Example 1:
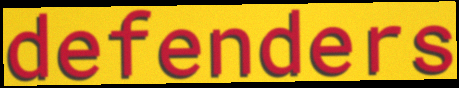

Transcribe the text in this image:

defenders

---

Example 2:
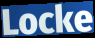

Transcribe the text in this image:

Locke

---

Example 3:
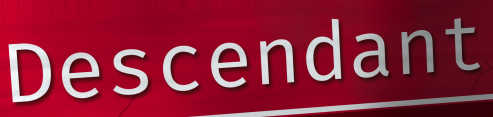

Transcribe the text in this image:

Descendant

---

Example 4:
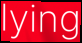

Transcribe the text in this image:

lying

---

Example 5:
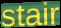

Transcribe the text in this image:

stair